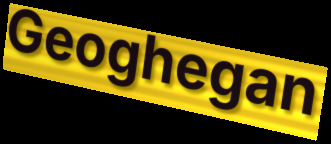
Geoghegan